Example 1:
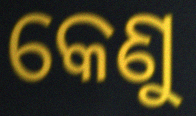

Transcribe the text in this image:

କେଣୁ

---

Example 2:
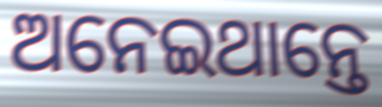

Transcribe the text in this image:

ଅନେଇଥାନ୍ତେ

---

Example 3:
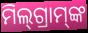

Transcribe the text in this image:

ମିଲ୍‌ଗ୍ରାମ୍‌ଙ୍କ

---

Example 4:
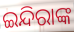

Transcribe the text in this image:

ଇନ୍ଦିରାଙ୍କ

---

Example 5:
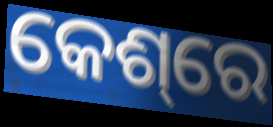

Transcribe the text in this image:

କେଶ୍‌ରେ